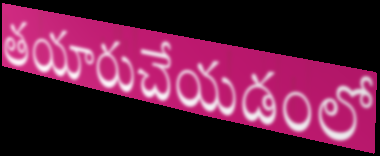
తయారుచేయడంలో